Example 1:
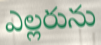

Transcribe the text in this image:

ఎల్లరును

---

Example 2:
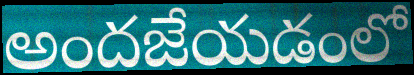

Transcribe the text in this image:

అందజేయడంలో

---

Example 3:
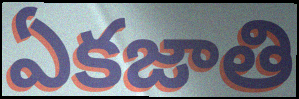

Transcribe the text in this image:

ఏకజాతి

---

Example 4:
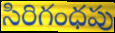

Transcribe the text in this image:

సిరిగంధపు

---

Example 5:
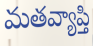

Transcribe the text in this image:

మతవ్యాప్తి